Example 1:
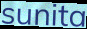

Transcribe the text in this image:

sunita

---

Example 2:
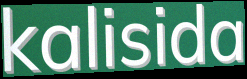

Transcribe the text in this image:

kalisida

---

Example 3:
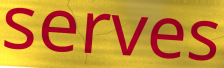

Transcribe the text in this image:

serves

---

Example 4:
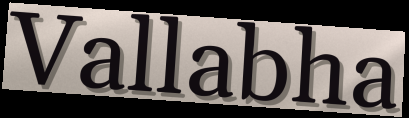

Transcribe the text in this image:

Vallabha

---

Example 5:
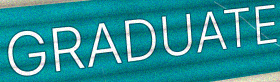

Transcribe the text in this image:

GRADUATE